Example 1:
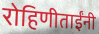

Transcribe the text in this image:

रोहिणीताईंनी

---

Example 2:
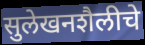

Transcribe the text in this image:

सुलेखनशैलीचे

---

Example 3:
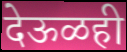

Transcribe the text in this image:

देऊळही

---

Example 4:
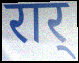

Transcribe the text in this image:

रार्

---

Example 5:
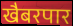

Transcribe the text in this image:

खैबरपार